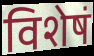
विशेषं